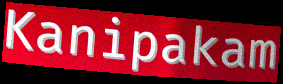
Kanipakam